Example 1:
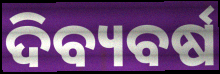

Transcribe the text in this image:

ଦିବ୍ୟବର୍ଷ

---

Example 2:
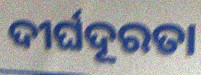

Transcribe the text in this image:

ଦୀର୍ଘଦୂରତା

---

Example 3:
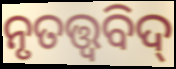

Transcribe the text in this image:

ନୃତତ୍ତ୍ଵବିଦ୍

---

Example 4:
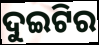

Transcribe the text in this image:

ଦୁଇଟିର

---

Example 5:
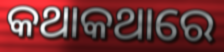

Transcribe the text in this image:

କଥାକଥାରେ